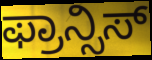
ಫ್ರಾನ್ಸಿಸ್